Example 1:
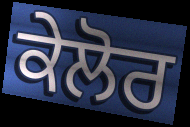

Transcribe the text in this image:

ਕੇਲੋਰ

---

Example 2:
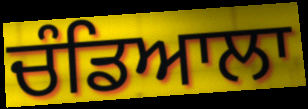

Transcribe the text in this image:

ਚੰਡਿਆਲਾ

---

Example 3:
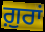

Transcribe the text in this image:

ਗ਼ੁਰਾਂ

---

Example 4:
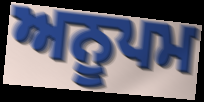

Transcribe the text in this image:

ਅਨੂਪਮ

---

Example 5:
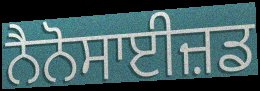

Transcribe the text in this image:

ਨੈਨੋਸਾਈਜ਼ਡ